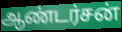
ஆண்டர்சன்